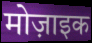
मोज़ाइक